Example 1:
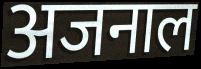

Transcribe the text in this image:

अजनाल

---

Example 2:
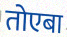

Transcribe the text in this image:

तोएबा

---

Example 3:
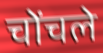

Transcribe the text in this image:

चोंचले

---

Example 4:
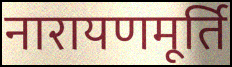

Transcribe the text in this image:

नारायणमूर्ति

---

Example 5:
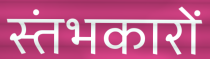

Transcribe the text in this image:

स्तंभकारों